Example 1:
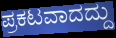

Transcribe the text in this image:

ಪ್ರಕಟವಾದದ್ದು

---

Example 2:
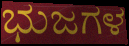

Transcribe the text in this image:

ಭುಜಗಳ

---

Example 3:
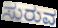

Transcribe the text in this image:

ಸುರುವ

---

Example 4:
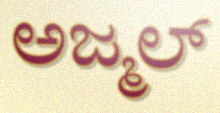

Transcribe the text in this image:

ಅಜ್ಮಲ್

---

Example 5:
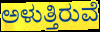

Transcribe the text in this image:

ಅಳುತ್ತಿರುವೆ